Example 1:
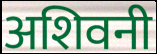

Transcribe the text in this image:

अशिवनी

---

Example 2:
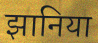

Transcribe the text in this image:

झानिया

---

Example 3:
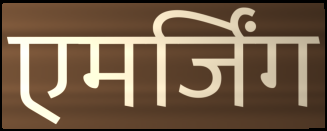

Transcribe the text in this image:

एमर्जिंग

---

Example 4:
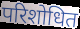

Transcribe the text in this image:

परिशोधित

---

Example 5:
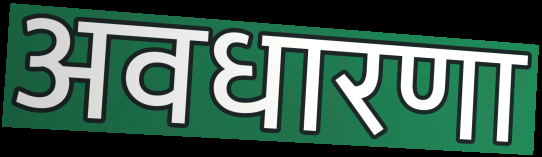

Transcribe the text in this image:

अवधारणा